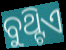
ବୁଥ୍ଟିଏ